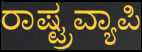
ರಾಷ್ಟ್ರವ್ಯಾಪಿ